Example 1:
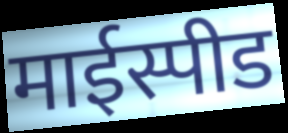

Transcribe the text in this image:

माईस्पीड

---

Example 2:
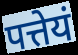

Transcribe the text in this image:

पत्तेयं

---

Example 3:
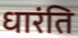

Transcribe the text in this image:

धारंति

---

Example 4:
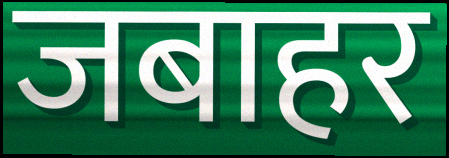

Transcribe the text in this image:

जबाहर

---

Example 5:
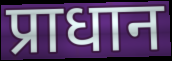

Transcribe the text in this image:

प्राधान